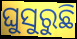
ଘୁସୁରୁଛି